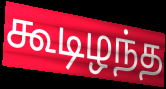
கூடிழந்த